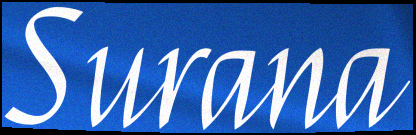
Surana